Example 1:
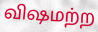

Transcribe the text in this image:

விஷமற்ற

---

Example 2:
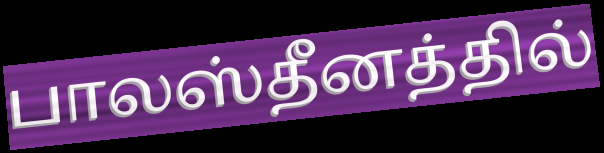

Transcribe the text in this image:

பாலஸ்தீனத்தில்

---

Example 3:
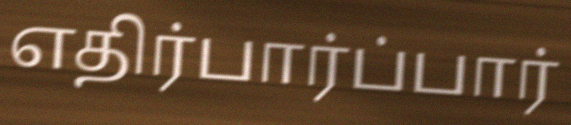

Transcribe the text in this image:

எதிர்பார்ப்பார்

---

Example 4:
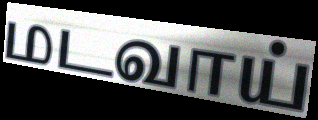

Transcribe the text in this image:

மடவாய்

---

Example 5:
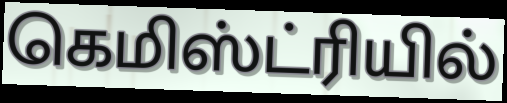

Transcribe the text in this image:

கெமிஸ்ட்ரியில்